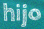
hijo